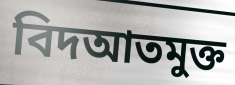
বিদআতমুক্ত